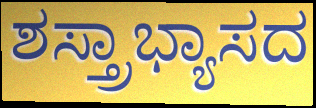
ಶಸ್ತ್ರಾಭ್ಯಾಸದ